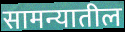
सामन्यातील